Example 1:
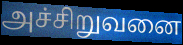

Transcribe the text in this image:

அச்சிறுவனை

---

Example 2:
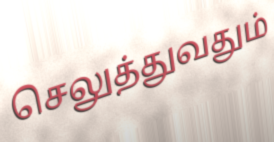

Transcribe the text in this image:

செலுத்துவதும்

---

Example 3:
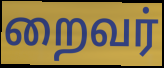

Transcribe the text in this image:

றைவர்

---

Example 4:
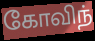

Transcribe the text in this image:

கோவிந்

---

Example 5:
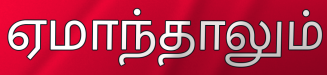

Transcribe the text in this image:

ஏமாந்தாலும்